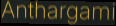
Anthargami